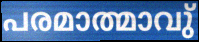
പരമാത്മാവു്